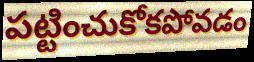
పట్టించుకోకపోవడం